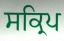
ਸਕ੍ਰਿਪ